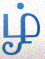
ழ்